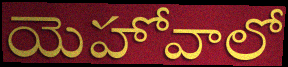
యెహోవాలో